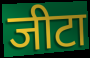
जीटा